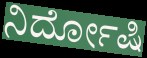
ನಿರ್ದೋಷಿ